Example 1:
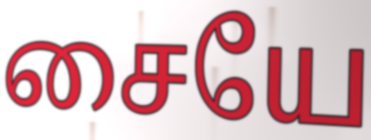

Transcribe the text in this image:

சையே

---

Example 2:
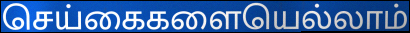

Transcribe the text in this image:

செய்கைகளையெல்லாம்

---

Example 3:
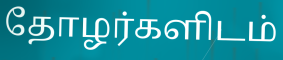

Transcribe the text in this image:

தோழர்களிடம்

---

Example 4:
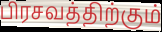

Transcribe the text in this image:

பிரசவத்திற்கும்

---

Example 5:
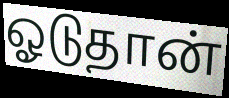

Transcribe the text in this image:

ஓடுதான்